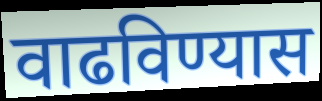
वाढविण्यास